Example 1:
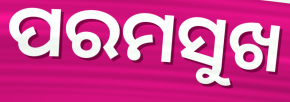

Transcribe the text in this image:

ପରମସୁଖ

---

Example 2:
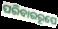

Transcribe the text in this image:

ପରିବାରରୂପେ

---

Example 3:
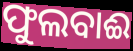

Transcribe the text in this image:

ଫୁଲବାଈ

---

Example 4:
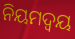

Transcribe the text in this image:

ନିୟମଦ୍ୱୟ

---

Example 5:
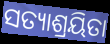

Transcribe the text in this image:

ସତ୍ୟାଶ୍ରୟିତା